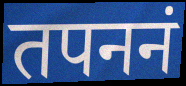
तपननं